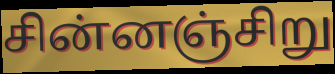
சின்னஞ்சிறு